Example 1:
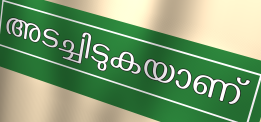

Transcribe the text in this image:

അടച്ചിടുകയാണ്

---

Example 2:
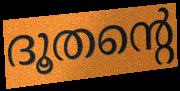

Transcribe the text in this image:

ദൂതന്റെ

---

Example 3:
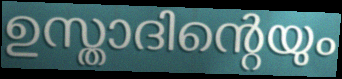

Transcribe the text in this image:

ഉസ്താദിന്റെയും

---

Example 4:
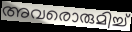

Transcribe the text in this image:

അവരൊരുമിച്ച്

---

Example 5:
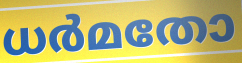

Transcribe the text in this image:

ധർമതോ